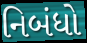
નિબંધો